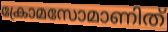
ക്രോമസോമാണിത്